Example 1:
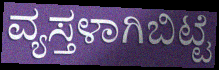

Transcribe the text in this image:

ವ್ಯಸ್ತಳಾಗಿಬಿಟ್ಟೆ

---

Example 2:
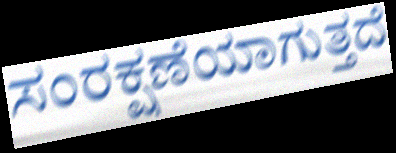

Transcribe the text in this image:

ಸಂರಕ್ಷಣೆಯಾಗುತ್ತದೆ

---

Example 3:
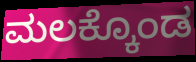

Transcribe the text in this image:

ಮಲಕ್ಕೊಂಡ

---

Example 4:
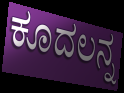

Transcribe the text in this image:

ಕೂದಲನ್ನ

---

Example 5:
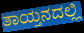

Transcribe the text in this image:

ತಾಯ್ತನದಲ್ಲಿ